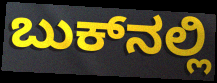
ಬುಕ್‌ನಲ್ಲಿ